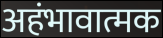
अहंभावात्मक